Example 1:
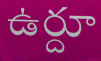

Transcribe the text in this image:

ఉర్దూ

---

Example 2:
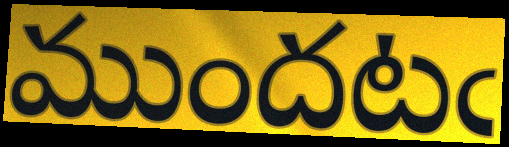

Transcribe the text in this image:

ముందటఁ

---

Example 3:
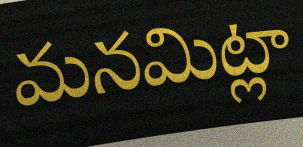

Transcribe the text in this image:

మనమిట్లా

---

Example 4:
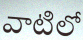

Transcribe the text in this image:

వాటిలో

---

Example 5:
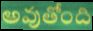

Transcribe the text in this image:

అవుతోంది